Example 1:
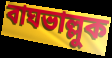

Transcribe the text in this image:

বাঘভাল্লুক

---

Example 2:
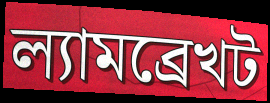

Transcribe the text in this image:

ল্যামব্রেখট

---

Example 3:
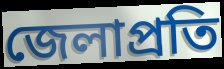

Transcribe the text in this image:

জেলাপ্রতি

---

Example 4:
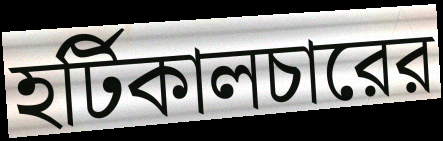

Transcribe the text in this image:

হর্টিকালচারের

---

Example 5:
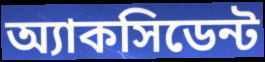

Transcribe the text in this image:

অ্যাকসিডেন্ট